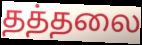
தத்தலை